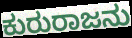
ಕುರುರಾಜನು